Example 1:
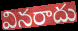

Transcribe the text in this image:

వినరాదు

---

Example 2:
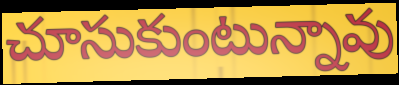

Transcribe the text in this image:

చూసుకుంటున్నావు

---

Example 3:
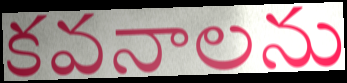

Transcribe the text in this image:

కవనాలను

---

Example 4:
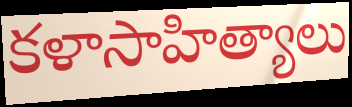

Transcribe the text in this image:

కళాసాహిత్యాలు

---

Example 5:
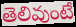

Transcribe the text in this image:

తెలివుంటే